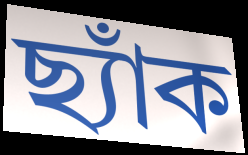
ছ্যাঁক